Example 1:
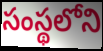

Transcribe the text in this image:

సంస్థలోని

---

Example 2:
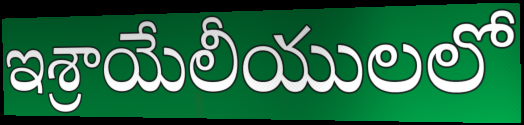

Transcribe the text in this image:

ఇశ్రాయేలీయులలో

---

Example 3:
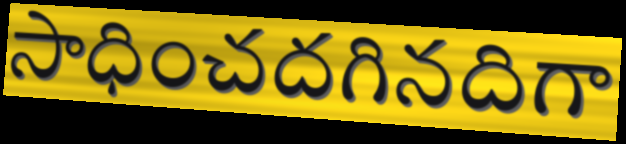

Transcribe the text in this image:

సాధించదగినదిగా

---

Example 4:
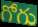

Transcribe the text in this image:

గోగు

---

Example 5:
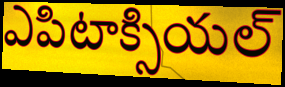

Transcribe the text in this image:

ఎపిటాక్సియల్